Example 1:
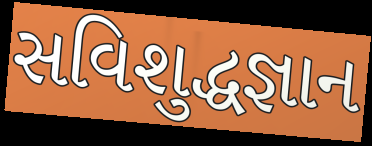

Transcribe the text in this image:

સવિશુદ્ધજ્ઞાન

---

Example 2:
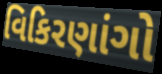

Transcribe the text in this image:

વિકિરણાંગો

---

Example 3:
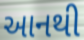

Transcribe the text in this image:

આનથી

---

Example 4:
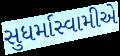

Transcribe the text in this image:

સુધર્માસ્વામીએ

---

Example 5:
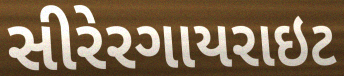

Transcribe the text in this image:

સીરેરગાયરાઇટ